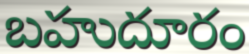
బహుదూరం